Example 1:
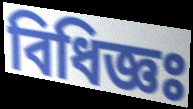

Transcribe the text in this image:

বিধিজ্ঞঃ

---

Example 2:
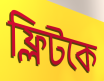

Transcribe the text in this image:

ফ্লিটকে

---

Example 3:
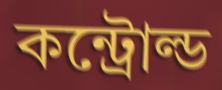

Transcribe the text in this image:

কন্ট্রোল্ড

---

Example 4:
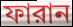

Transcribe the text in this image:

ফারান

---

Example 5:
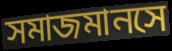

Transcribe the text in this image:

সমাজমানসে